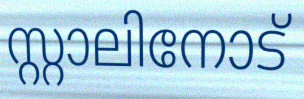
സ്റ്റാലിനോട്